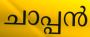
ചാപ്പൻ